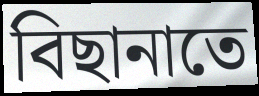
বিছানাতে